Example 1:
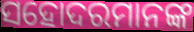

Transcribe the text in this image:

ସହୋଦରମାନଙ୍କ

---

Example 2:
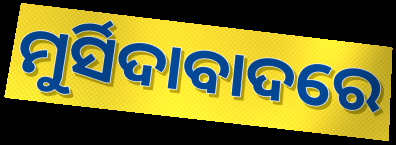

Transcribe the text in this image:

ମୁର୍ସିଦାବାଦରେ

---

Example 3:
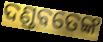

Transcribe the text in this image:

ଦଣ୍ଡବତେଙ୍କ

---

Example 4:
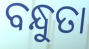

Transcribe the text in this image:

ବନ୍ଧୁତା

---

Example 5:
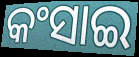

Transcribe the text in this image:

କଂସାଇ